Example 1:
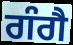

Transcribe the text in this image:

ਗੰਗੈ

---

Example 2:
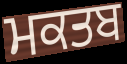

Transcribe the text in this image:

ਮਕਤਬ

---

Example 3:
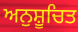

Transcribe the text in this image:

ਅਨੁਸ਼ੂਚਿਤ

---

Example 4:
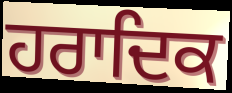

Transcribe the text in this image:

ਹਰਾਦਿਕ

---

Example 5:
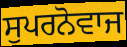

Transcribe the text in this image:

ਸੁਪਰਨੋਵਾਜ